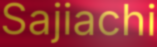
Sajiachi